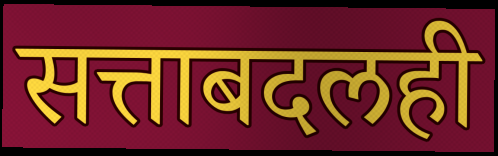
सत्ताबदलही